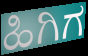
ಹಿಗಿಗ